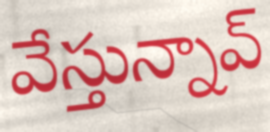
వేస్తున్నావ్